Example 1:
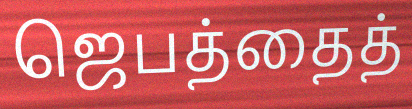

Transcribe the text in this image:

ஜெபத்தைத்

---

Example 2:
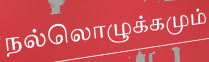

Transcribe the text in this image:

நல்லொழுக்கமும்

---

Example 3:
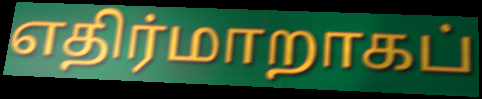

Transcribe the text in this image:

எதிர்மாறாகப்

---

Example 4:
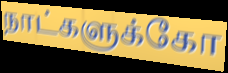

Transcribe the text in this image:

நாட்களுக்கோ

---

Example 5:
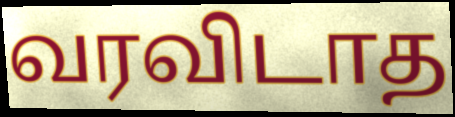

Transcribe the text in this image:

வரவிடாத